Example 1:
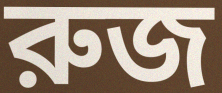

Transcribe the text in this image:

রুজ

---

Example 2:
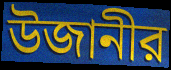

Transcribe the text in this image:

উজানীর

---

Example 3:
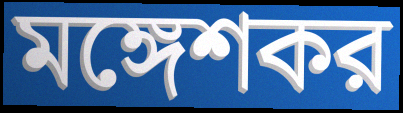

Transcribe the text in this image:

মঙ্গেশকর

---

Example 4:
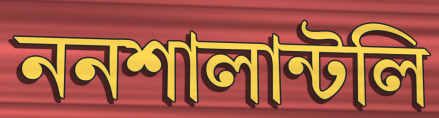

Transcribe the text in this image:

ননশালান্টলি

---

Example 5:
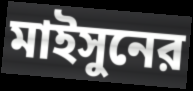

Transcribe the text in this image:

মাইসুনের